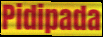
Pidipada